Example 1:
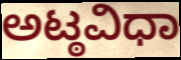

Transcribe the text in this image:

ಅಟ್ಠವಿಧಾ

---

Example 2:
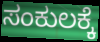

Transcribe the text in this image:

ಸಂಕುಲಕ್ಕೆ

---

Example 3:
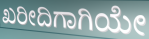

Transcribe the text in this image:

ಖರೀದಿಗಾಗಿಯೇ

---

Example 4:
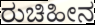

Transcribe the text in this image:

ರುಚಿಹೀನ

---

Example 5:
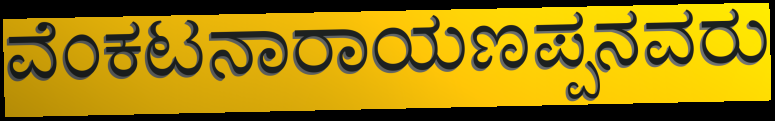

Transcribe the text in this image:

ವೆಂಕಟನಾರಾಯಣಪ್ಪನವರು